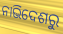
ନାଭିଦେଶରୁ